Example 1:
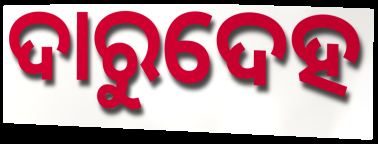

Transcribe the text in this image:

ଦାରୁଦେହ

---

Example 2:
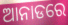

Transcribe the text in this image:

ଆନାଡରେ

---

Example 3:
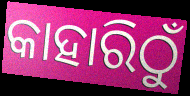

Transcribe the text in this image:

କାହାରିଠୁଁ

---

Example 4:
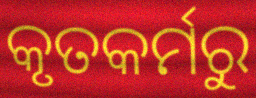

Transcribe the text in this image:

କୃତକର୍ମରୁ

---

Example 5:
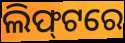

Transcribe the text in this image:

ଲିଫ୍‍ଟରେ